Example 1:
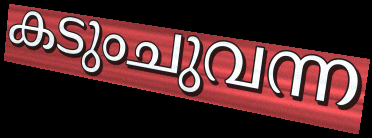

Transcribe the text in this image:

കടുംചുവന്ന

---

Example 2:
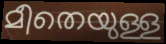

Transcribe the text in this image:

മീതെയുള്ള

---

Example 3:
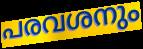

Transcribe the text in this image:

പരവശനും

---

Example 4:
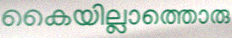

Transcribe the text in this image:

കൈയില്ലാത്തൊരു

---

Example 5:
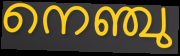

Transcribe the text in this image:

നെഞ്ചു